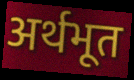
अर्थभूत